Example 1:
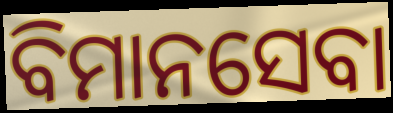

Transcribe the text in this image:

ବିମାନସେବା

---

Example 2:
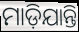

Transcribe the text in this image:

ମାଡ଼ିଯାନ୍ତି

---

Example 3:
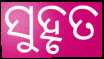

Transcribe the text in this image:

ସୁହୃତ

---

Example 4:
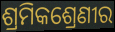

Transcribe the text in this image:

ଶ୍ରମିକଶ୍ରେଣୀର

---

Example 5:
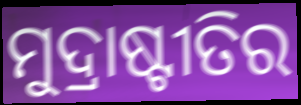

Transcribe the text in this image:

ମୁଦ୍ରାଷ୍ଟୀତିର